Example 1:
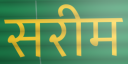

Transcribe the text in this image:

सरीम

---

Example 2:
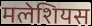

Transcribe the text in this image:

मलेशियस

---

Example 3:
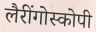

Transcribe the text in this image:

लैरींगोस्कोपी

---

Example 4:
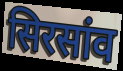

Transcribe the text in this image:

सिरसांव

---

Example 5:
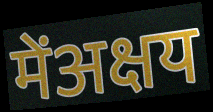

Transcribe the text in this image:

मेंअक्षय